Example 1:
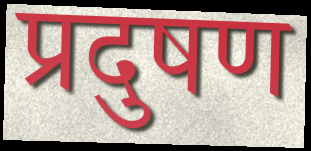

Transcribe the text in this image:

प्रदुषण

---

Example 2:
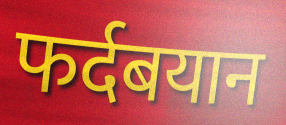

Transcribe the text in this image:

फर्दबयान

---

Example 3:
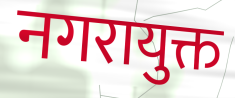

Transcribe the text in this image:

नगरायुक्त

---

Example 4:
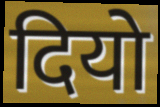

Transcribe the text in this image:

दियो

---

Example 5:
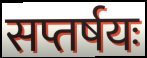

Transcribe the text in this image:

सप्तर्षयः